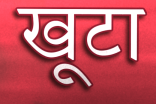
खूटा